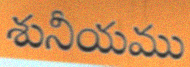
శునీయము